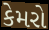
કેમરો